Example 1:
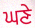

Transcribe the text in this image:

ਘਣੇ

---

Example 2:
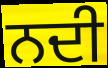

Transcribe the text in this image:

ਨਦੀ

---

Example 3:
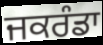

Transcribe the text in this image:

ਜਕਰੰਡਾ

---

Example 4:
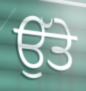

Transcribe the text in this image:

ਉੱਤੇ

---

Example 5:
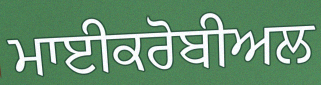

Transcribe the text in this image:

ਮਾਈਕਰੋਬੀਅਲ